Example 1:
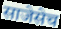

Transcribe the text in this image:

साजेसेच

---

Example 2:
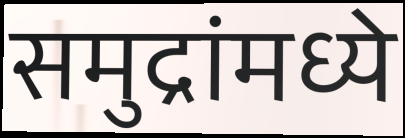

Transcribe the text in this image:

समुद्रांमध्ये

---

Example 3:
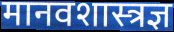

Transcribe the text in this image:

मानवशास्त्रज्ञ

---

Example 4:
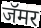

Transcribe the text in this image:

जॅमर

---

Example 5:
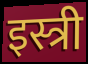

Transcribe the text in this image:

इस्त्री